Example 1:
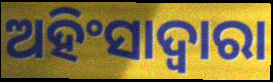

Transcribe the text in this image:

ଅହିଂସାଦ୍ୱାରା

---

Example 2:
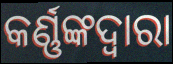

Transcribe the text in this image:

କର୍ଣ୍ଣଙ୍କଦ୍ୱାରା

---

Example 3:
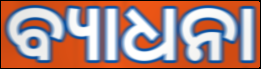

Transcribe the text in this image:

ବ୍ୟାଧନା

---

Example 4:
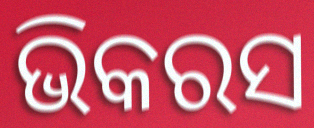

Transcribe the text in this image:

ଭିକରସ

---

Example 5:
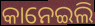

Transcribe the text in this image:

କାନେଇଲି